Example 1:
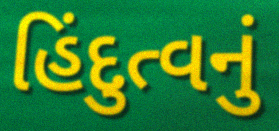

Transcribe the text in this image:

હિંદુત્વનું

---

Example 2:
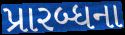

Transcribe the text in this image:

પ્રારબ્ધના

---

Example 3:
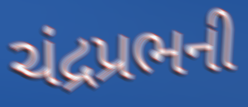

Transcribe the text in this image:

ચંદ્રપ્રભની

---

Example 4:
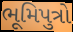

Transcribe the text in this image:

ભૂમિપુત્રો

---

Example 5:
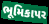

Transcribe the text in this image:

ભૂમિકાપર